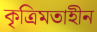
কৃত্রিমতাহীন